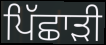
ਪਿੱਛਾੜੀ